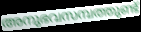
അനുഭവസമ്പത്തുണ്ട്